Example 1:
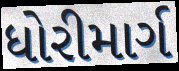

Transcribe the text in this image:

ધોરીમાર્ગ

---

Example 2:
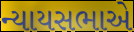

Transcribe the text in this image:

ન્યાયસભાએ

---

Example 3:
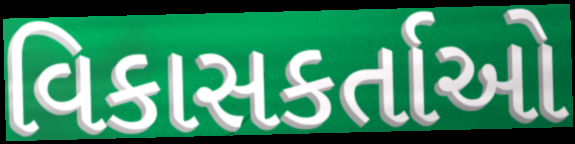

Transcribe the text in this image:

વિકાસકર્તાઓ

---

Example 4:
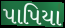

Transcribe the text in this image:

પાપિયા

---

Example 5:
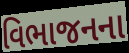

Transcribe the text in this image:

વિભાજનના